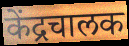
केंद्रचालक